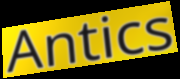
Antics